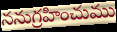
ననుగ్రహించుము